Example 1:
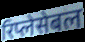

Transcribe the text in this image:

रिप्लेसेबल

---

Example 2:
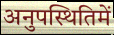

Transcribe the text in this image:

अनुपस्थितिमें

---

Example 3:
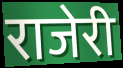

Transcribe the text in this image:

राजेरी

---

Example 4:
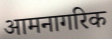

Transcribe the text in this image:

आमनागरिक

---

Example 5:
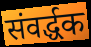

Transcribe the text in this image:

संवर्द्धक